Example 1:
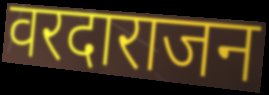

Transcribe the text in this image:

वरदाराजन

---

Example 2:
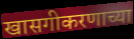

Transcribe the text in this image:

खासगीकरणाच्या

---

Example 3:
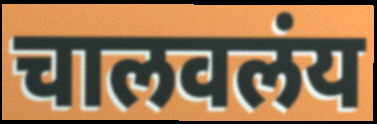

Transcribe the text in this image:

चालवलंय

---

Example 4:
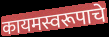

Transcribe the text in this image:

कायमस्वरूपाचे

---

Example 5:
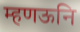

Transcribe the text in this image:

म्हणऊनि